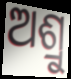
ଅଶ୍ରୁ